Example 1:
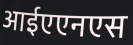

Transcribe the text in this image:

आईएएनएस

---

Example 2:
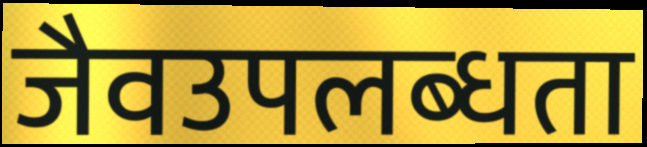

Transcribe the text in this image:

जैवउपलब्धता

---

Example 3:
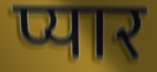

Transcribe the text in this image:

प्यार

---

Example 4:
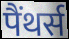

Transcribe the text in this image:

पैंथर्स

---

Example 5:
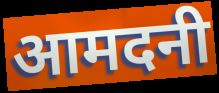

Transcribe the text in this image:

आमदनी